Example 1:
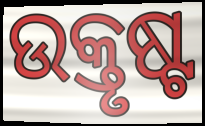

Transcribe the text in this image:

ଉକ୍ତୃଷ୍ଟ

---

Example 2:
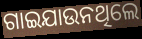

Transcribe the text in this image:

ଗାଇଯାଉନଥିଲେ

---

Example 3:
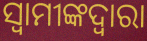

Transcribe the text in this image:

ସ୍ୱାମୀଙ୍କଦ୍ୱାରା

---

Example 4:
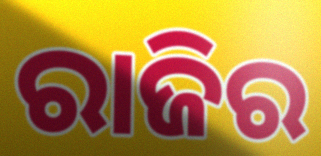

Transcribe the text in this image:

ରାଜିର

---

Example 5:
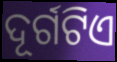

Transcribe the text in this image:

ଦୂର୍ଗଟିଏ